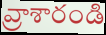
వ్రాశారండి